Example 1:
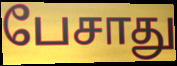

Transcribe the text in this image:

பேசாது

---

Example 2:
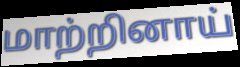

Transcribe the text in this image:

மாற்றினாய்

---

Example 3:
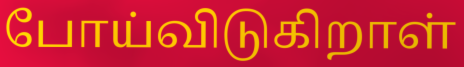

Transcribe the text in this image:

போய்விடுகிறாள்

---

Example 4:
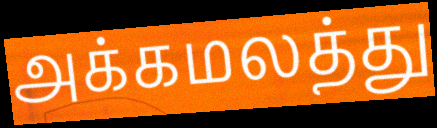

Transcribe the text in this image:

அக்கமலத்து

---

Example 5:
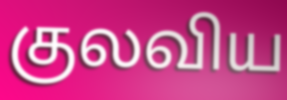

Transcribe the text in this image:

குலவிய